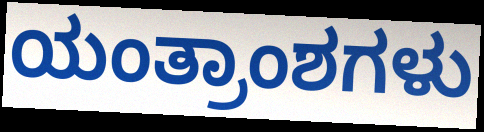
ಯಂತ್ರಾಂಶಗಳು